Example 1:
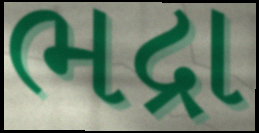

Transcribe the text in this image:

ભદ્રા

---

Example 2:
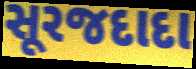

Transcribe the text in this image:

સૂરજદાદા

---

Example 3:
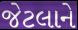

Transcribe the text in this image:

જેટલાને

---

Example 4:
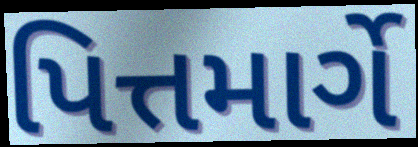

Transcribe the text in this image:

પિત્તમાર્ગે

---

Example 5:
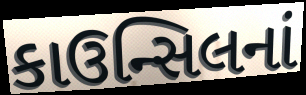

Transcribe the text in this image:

કાઉન્સિલનાં